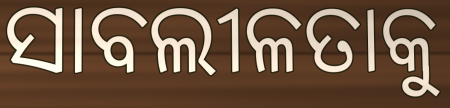
ସାବଲୀଳତାକୁ